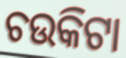
ଚଉକିଟା